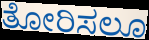
ತೋರಿಸಲೂ